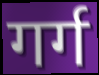
गर्ग